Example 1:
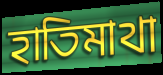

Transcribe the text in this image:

হাতিমাথা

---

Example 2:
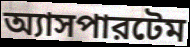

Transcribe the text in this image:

অ্যাসপারটেম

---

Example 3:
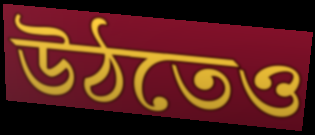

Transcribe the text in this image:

উঠতেও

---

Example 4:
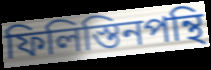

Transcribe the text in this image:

ফিলিস্তিনপন্থি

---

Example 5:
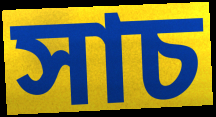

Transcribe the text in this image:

সাচ